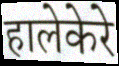
हालेकेरे